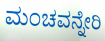
ಮಂಚವನ್ನೇರಿ